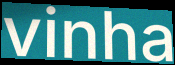
vinha